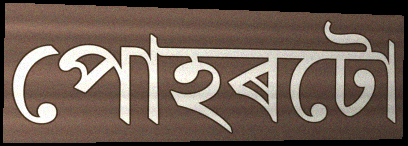
পোহৰটো